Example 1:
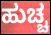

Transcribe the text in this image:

ಹುಚ್ಚ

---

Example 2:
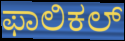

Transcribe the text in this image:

ಫಾಲಿಕಲ್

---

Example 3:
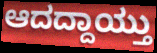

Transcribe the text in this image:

ಆದದ್ದಾಯ್ತು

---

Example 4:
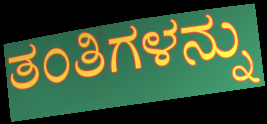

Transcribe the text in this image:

ತಂತಿಗಳನ್ನು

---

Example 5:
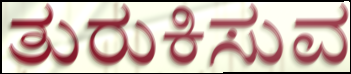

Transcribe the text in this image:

ತುರುಕಿಸುವ